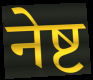
नेष्ट